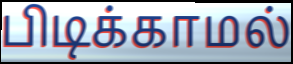
பிடிக்காமல்